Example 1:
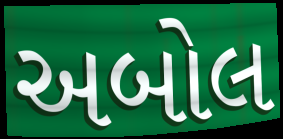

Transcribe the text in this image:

અબોલ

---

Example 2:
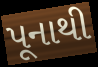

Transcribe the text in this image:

પૂનાથી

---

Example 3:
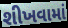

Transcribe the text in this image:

શીખવામાં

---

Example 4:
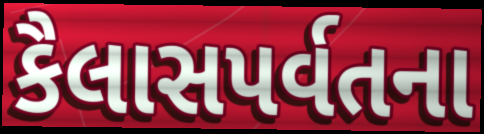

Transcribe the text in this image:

કૈલાસપર્વતના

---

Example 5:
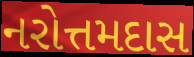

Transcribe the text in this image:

નરોત્તમદાસ